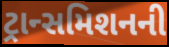
ટ્રાન્સમિશનની